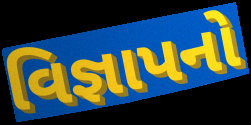
વિજ્ઞાપનો